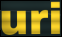
uri